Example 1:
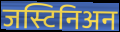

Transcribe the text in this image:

जस्टिनिअन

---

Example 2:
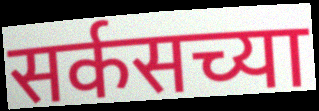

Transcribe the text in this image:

सर्कसच्या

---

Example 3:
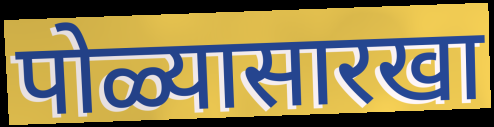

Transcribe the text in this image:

पोळ्यासारखा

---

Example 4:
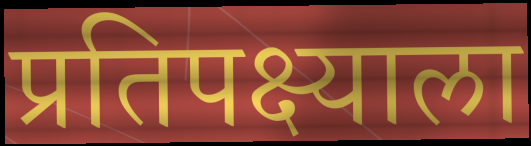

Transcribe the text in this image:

प्रतिपक्ष्याला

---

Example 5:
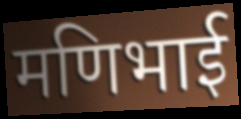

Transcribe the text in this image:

मणिभाई